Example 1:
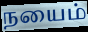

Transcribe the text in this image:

நயைம்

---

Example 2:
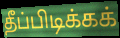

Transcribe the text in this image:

தீப்பிடிக்கக்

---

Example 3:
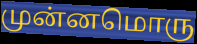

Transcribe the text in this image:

முன்னமொரு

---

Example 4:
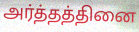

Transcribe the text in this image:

அர்த்தத்தினை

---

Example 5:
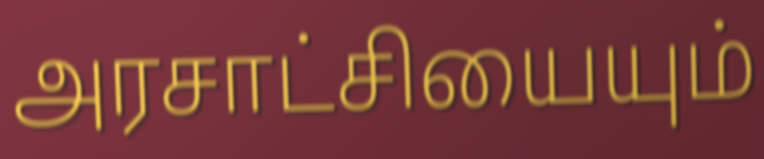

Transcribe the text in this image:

அரசாட்சியையும்